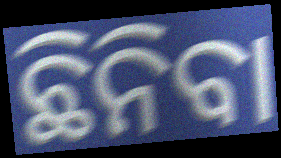
ଛିନିବା